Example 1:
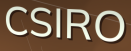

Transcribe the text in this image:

CSIRO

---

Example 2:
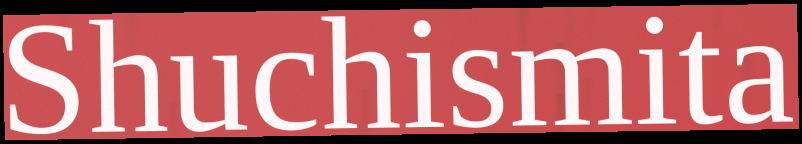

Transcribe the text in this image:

Shuchismita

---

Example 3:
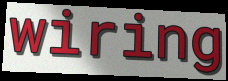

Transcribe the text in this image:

wiring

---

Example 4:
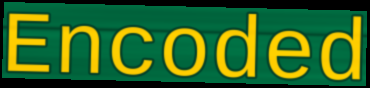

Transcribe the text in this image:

Encoded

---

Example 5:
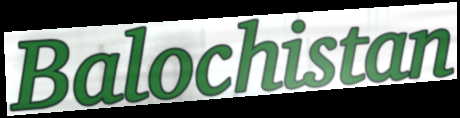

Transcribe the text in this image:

Balochistan